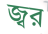
জ্বর